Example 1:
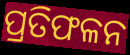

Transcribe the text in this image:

ପ୍ରତିଫଳନ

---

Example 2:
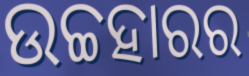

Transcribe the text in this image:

ଉଚ୍ଚହାରର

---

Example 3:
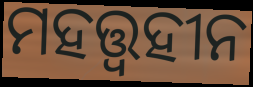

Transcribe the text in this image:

ମହତ୍ତ୍ବହୀନ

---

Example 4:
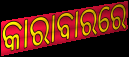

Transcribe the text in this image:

କାରାବାରରେ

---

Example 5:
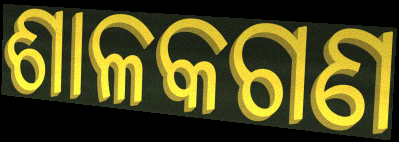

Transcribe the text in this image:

ଶାଳକଗଣ